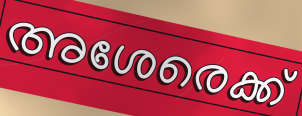
അശേരെക്ക്